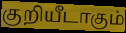
குறியீடாகும்